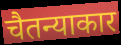
चैतन्याकार